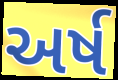
અર્ષ